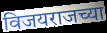
विजयराजच्या